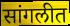
सांगलीत